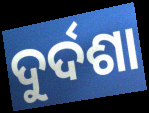
ଦୁର୍ଦଶା